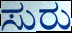
ಸುರು